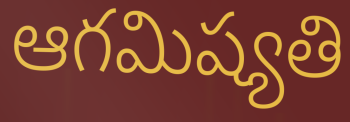
ఆగమిష్యతి